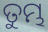
ତୁମ୍ଭ